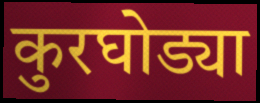
कुरघोड्या